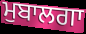
ਮੁਬਾਲਗਾ